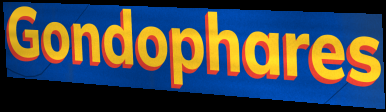
Gondophares